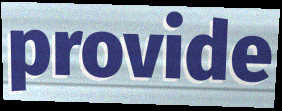
provide